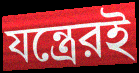
যন্ত্রেরই